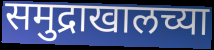
समुद्राखालच्या